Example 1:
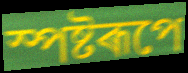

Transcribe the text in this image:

স্পষ্টৰূপে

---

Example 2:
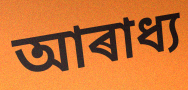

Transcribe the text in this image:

আৰাধ্য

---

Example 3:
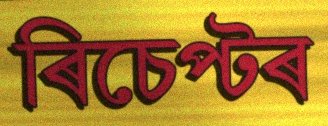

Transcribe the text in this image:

ৰিচেপ্টৰ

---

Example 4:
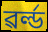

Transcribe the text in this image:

ৱৰ্ল্ড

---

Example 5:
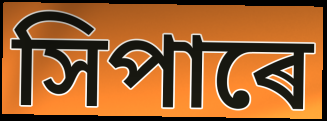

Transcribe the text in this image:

সিপাৰে